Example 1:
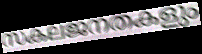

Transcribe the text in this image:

സകലജനതകളും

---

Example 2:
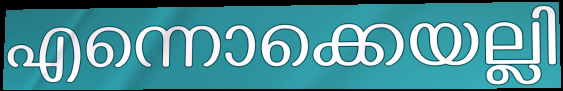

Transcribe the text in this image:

എന്നൊക്കെയല്ലി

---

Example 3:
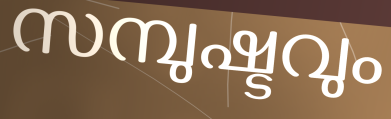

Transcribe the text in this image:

സമ്പുഷ്ടവും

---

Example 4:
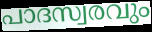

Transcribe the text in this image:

പാദസ്വരവും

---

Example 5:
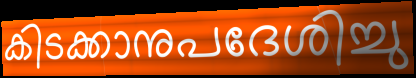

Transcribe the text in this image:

കിടക്കാനുപദേശിച്ചു